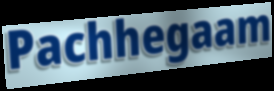
Pachhegaam